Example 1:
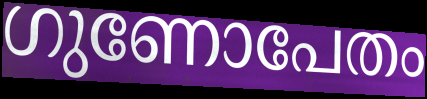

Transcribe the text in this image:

ഗുണോപേതം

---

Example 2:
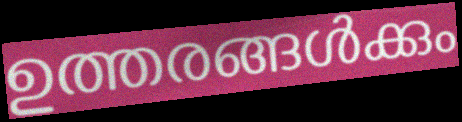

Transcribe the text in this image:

ഉത്തരങ്ങൾക്കും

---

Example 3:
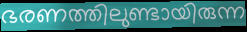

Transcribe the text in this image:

ഭരണത്തിലുണ്ടായിരുന്ന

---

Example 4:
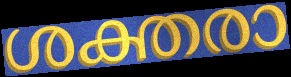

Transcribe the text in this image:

ശക്തരാ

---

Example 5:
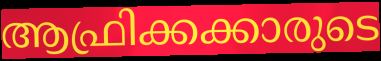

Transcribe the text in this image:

ആഫ്രിക്കക്കാരുടെ